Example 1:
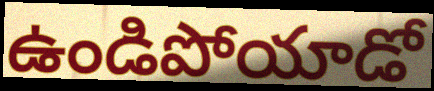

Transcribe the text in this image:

ఉండిపోయాడో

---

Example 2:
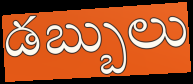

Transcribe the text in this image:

డబ్బులు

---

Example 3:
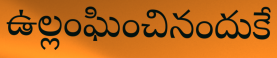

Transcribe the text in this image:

ఉల్లంఘించినందుకే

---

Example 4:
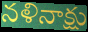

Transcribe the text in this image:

నళినాక్షు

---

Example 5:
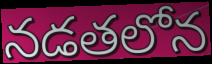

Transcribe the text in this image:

నడతలోన